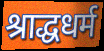
श्राद्धधर्म